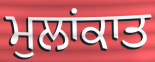
ਮੁਲਾਂਕਾਤ